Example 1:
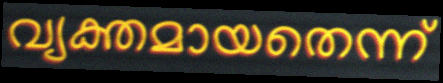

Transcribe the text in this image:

വ്യക്തമായതെന്ന്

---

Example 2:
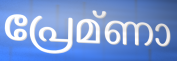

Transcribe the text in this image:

പ്രേമ്ണാ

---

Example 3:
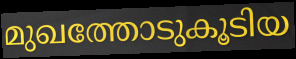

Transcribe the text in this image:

മുഖത്തോടുകൂടിയ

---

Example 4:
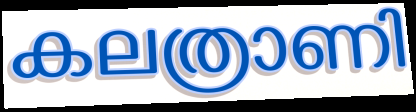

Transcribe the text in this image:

കലത്രാണി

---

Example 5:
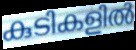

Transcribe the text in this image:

കുടികളിൽ